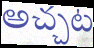
అచ్చట